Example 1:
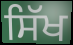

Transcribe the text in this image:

ਸਿੱਖ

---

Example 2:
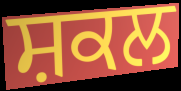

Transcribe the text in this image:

ਸ਼ਕਲ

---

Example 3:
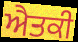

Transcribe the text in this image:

ਐਤਕੀ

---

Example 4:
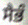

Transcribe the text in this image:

ਸੈਭੰ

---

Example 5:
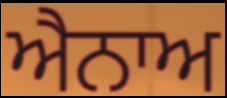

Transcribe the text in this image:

ਐਨਾਅ